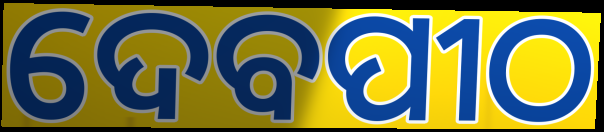
ଦେବପୀଠ